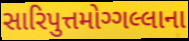
સારિપુત્તમોગ્ગલ્લાના